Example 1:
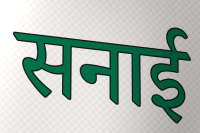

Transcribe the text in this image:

सनाई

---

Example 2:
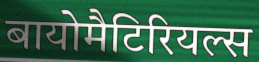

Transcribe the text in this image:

बायोमैटिरियल्स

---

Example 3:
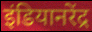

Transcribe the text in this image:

इंडियानरेंद्र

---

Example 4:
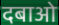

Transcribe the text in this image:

दबाओ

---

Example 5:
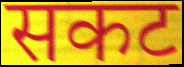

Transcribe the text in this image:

सकट